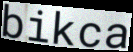
bikca